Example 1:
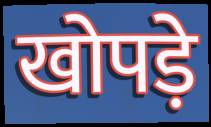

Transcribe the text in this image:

खोपड़े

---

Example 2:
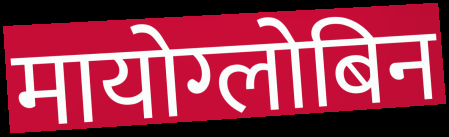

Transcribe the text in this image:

मायोग्लोबिन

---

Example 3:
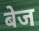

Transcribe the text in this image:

बेज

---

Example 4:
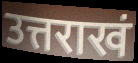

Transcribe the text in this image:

उत्तराखं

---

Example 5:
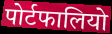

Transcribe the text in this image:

पोर्टफालियो